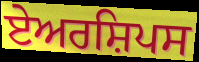
ਏਅਰਸ਼ਿਪਸ